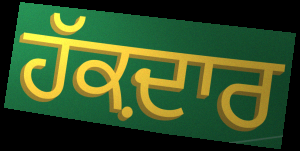
ਹੱਕ਼ਦਾਰ